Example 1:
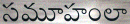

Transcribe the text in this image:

సమూహంలా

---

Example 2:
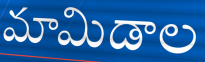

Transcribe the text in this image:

మామిడాల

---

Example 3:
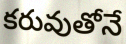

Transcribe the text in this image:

కరువుతోనే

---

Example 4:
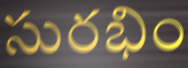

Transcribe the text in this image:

సురభిం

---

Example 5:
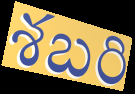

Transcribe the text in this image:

శబరి